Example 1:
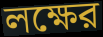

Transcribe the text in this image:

লক্ষের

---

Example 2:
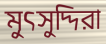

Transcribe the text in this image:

মুৎসুদ্দিরা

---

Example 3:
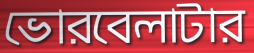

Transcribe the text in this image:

ভোরবেলাটার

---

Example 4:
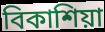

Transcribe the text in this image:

বিকাশিয়া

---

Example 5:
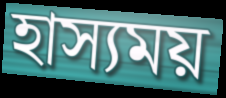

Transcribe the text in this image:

হাস্যময়